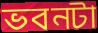
ভবনটা